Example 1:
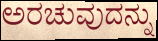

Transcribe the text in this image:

ಅರಚುವುದನ್ನು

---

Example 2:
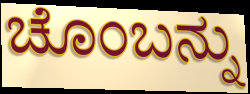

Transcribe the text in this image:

ಚೊಂಬನ್ನು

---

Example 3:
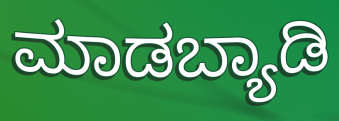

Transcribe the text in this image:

ಮಾಡಬ್ಯಾಡಿ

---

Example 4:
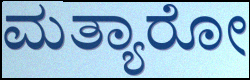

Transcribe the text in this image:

ಮತ್ಯಾರೋ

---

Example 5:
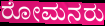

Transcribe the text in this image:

ರೋಮನರು